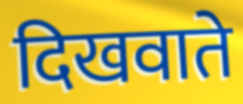
दिखवाते